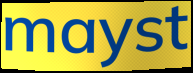
mayst